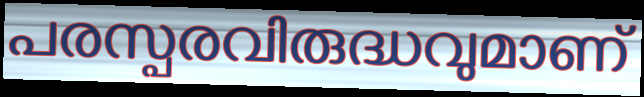
പരസ്പരവിരുദ്ധവുമാണ്